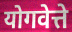
योगवेत्ते